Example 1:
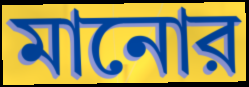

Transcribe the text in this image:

মানোর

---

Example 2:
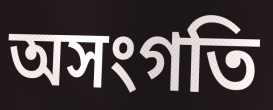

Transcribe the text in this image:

অসংগতি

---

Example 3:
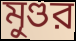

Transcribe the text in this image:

মুণ্ডর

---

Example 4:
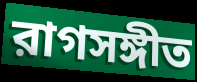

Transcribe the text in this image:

রাগসঙ্গীত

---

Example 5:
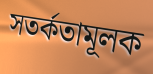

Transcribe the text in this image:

সতর্কতামূলক